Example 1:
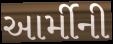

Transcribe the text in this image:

આર્મીની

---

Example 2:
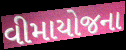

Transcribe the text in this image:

વીમાયોજના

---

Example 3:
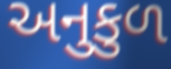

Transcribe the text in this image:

અનુકુળ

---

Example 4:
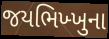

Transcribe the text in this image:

જયભિખ્ખુના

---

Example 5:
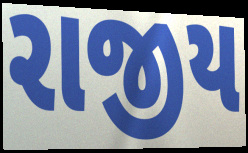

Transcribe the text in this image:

રાજીય